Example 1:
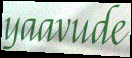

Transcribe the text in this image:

yaavude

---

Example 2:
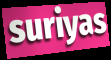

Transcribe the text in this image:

suriyas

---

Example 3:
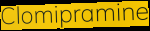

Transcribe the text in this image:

Clomipramine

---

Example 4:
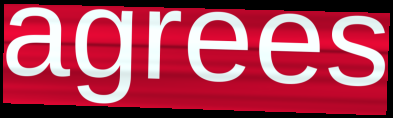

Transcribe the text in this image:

agrees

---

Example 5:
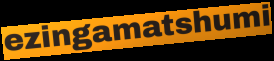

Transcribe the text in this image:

ezingamatshumi